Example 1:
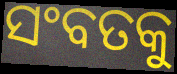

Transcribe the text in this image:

ସଂବତକୁ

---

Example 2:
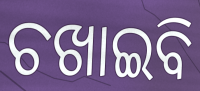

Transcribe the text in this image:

ଚଖାଇବି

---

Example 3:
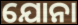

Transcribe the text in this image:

ଯୋନା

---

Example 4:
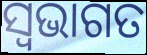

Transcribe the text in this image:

ସ୍ଵଭାଗତ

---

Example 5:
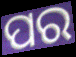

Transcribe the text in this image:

ପର